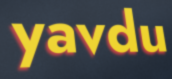
yavdu